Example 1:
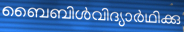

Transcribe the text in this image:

ബൈബിൾവിദ്യാർഥിക്കു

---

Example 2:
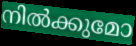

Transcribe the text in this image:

നിൽക്കുമോ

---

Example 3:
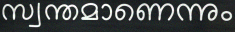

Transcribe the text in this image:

സ്വന്തമാണെന്നും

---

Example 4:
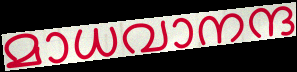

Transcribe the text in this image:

മാധവാനന്ദ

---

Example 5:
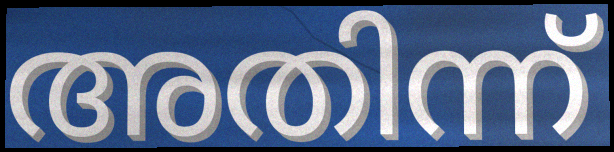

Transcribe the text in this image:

അതിന്ന്